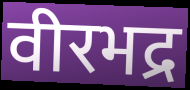
वीरभद्र